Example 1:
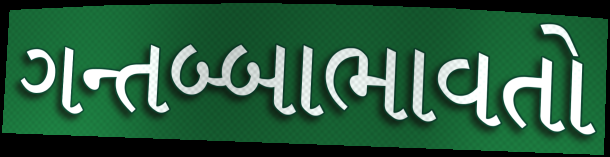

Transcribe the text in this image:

ગન્તબ્બાભાવતો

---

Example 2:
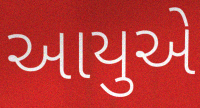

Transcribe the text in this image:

આયુએ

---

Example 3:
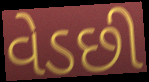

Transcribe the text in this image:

વેડછી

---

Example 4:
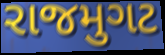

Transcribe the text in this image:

રાજમુગટ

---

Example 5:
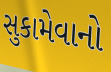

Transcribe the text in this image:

સુકામેવાનો